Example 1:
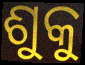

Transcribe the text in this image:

ଶୁକୁ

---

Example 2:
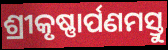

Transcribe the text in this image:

ଶ୍ରୀକୃଷ୍ଣାର୍ପଣମସ୍ତୁ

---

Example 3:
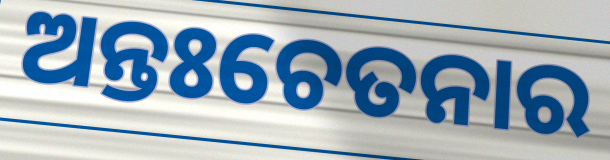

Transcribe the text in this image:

ଅନ୍ତଃଚେତନାର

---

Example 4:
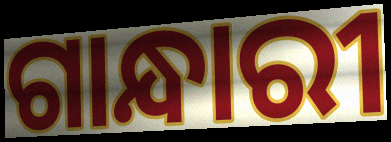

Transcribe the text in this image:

ଗାନ୍ଧାରୀ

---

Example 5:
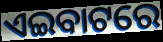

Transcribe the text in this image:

ଏଇବାଟରେ